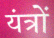
यंत्रों